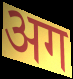
अग